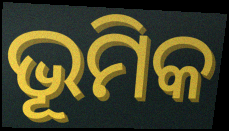
ଭୂମିକ